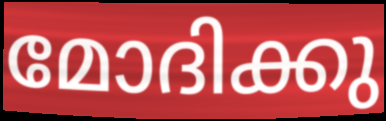
മോദിക്കു